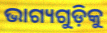
ଭାଗ୍ୟଗୁଡ଼ିକୁ